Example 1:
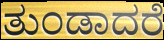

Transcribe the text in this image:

ತುಂಡಾದರೆ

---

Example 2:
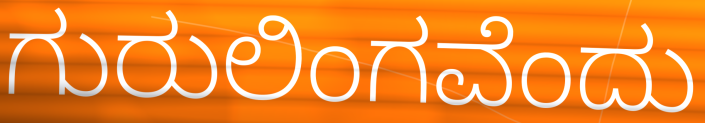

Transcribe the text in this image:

ಗುರುಲಿಂಗವೆಂದು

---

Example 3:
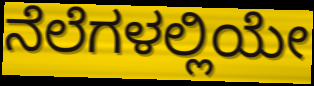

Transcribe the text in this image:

ನೆಲೆಗಳಲ್ಲಿಯೇ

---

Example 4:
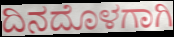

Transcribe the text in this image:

ದಿನದೊಳಗಾಗಿ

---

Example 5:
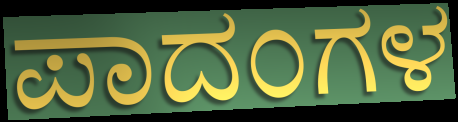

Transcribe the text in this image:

ಪಾದಂಗಳ